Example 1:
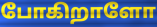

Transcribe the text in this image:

போகிறாளோ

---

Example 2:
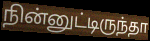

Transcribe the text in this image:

நின்னுட்டிருந்தா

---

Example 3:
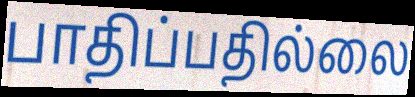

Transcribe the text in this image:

பாதிப்பதில்லை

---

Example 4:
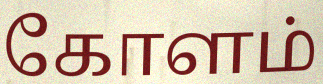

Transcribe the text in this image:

கோளம்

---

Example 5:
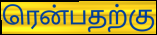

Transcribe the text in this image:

ரென்பதற்கு